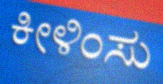
ಕೀಳಿಂಸು